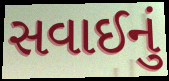
સવાઈનું